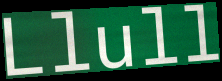
Llull